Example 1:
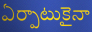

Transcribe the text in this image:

ఏర్పాటుకైనా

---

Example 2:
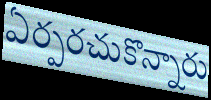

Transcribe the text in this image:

ఏర్పరచుకొన్నారు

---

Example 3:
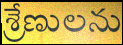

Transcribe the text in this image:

శ్రేణులను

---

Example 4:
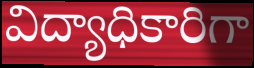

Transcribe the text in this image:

విద్యాధికారిగా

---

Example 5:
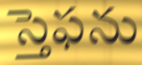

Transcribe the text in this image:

స్తెఫను